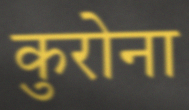
कुरोना